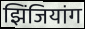
झिंजियांग